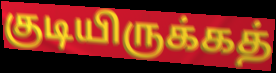
குடியிருக்கத்